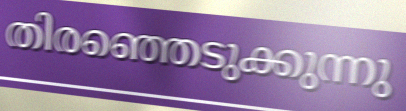
തിരഞ്ഞെടുക്കുന്നു